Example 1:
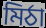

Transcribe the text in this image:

মিঠা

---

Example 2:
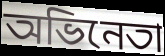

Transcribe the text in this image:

অভিনেতা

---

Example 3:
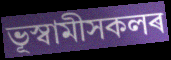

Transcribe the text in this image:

ভূস্বামীসকলৰ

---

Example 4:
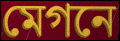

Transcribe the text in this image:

মেগনে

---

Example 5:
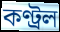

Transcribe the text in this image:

কণ্ট্ৰল